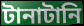
টানাটানি